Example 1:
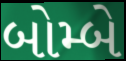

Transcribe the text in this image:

બોમ્બે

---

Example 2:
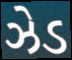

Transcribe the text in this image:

ઝેડ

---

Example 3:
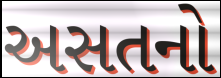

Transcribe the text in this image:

અસતનો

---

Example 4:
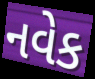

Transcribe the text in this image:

નવેક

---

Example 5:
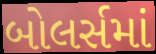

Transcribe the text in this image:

બોલર્સમાં